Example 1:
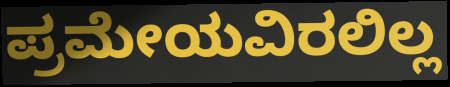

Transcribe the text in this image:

ಪ್ರಮೇಯವಿರಲಿಲ್ಲ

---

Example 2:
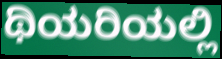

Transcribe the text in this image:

ಥಿಯರಿಯಲ್ಲಿ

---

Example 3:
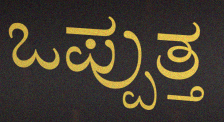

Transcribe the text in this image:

ಒಪ್ಪುತ್ತ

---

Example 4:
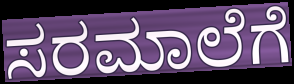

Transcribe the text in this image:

ಸರಮಾಲೆಗೆ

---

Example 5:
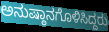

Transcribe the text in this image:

ಅನುಷ್ಠಾನಗೊಳಿಸಿದ್ದರು